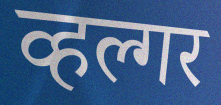
व्हल्गर